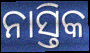
ନାସ୍ତିକ